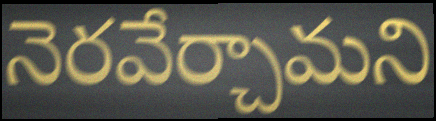
నెరవేర్చామని